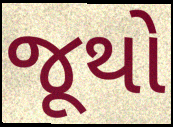
જૂથો